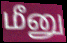
மீனு